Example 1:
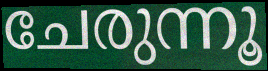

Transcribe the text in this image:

ചേരുന്നൂ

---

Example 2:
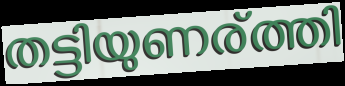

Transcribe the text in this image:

തട്ടിയുണര്ത്തി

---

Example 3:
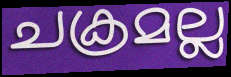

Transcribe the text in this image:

ചക്രമല്ല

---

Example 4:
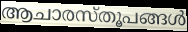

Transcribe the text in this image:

ആചാരസ്തൂപങ്ങൾ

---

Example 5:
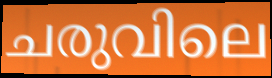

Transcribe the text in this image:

ചരുവിലെ